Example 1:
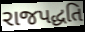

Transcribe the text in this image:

રાજપદ્ધતિ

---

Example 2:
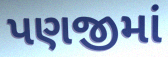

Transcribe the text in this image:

પણજીમાં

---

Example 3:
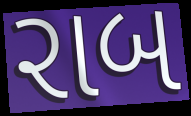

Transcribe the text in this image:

રાબ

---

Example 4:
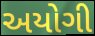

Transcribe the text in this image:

અયોગી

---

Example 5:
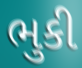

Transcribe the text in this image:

ભુકી